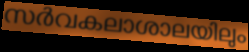
സർവകലാശാലയിലും